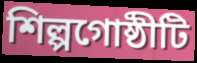
শিল্পগোষ্ঠীটি